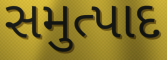
સમુત્પાદ